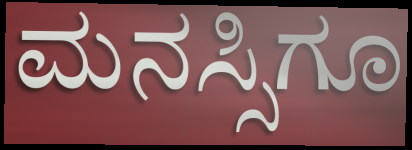
ಮನಸ್ಸಿಗೂ